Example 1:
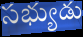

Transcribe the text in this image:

సభ్యుడు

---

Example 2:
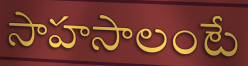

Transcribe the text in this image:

సాహసాలంటే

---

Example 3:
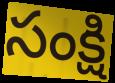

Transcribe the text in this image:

సంక్షి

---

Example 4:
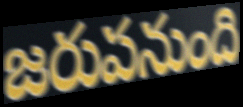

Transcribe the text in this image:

జరుపనుంది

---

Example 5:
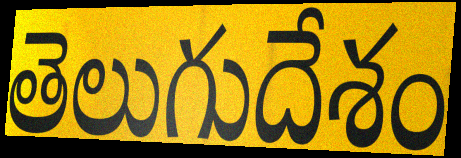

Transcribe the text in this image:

తెలుగుదేశం